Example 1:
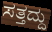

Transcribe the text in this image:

ಸತ್ತದ್ದು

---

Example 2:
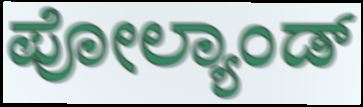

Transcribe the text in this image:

ಪೋಲ್ಯಾಂಡ್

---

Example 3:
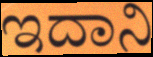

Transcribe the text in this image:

ಇದಾನಿ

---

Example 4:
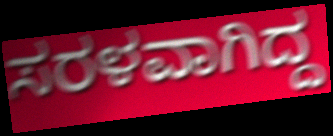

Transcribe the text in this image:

ಸರಳವಾಗಿದ್ದ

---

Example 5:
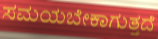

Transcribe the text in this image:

ಸಮಯಬೇಕಾಗುತ್ತದೆ